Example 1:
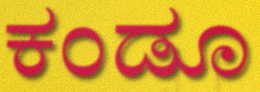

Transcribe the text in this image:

ಕಂಡೂ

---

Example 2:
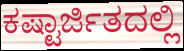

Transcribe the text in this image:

ಕಷ್ಟಾರ್ಜಿತದಲ್ಲಿ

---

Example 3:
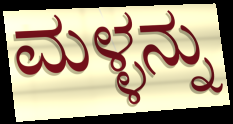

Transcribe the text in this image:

ಮಳ್ಳನ್ನು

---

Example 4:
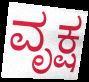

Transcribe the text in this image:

ವೃಕ್ಷ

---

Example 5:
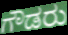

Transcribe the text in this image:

ಗೌಡರು